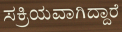
ಸಕ್ರಿಯವಾಗಿದ್ದಾರೆ